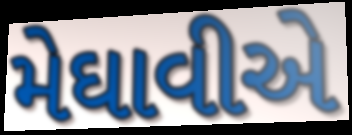
મેઘાવીએ